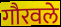
गौरवले